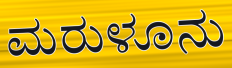
ಮರುಳೂನು